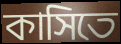
কাসিতে